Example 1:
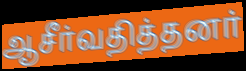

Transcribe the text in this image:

ஆசீர்வதித்தனர்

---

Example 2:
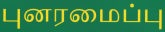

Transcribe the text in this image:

புனரமைப்பு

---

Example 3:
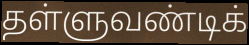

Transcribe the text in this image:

தள்ளுவண்டிக்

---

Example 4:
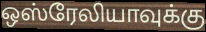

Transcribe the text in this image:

ஒஸ்ரேலியாவுக்கு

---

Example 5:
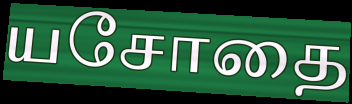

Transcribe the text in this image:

யசோதை